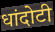
धांदोटी